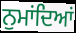
ਨੁਮਾਂਦਿਆਂ